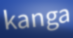
kanga